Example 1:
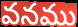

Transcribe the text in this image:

వనము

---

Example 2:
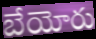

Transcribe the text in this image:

బేయోరు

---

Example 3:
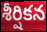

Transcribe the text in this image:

శీర్షికన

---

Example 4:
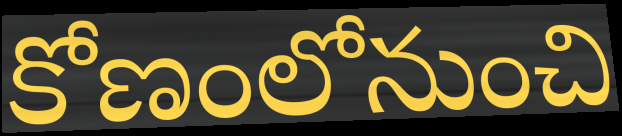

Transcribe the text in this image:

కోణంలోనుంచి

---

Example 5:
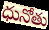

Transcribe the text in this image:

ధునోతు